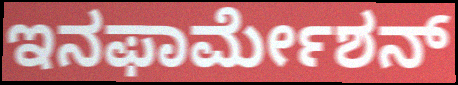
ಇನಫಾರ್ಮೇಶನ್